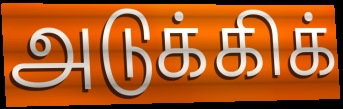
அடுக்கிக்